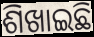
ଶିଖାଇଛି